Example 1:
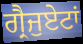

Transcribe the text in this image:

ਗ੍ਰੈਜੁਏਟਾਂ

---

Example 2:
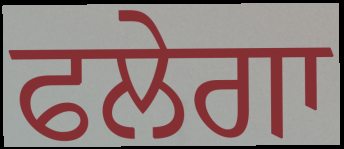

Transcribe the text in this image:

ਫਲੇਗਾ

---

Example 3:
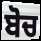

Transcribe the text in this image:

ਬੋਚ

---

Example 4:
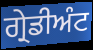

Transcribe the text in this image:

ਗ੍ਰੇਡੀਅੰਟ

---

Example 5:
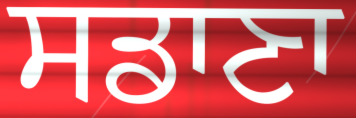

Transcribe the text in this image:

ਸਡਾਣਾ